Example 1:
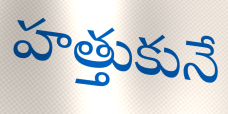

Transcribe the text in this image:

హత్తుకునే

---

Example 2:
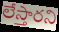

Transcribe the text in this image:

లేస్తారని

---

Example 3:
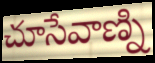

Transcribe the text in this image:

చూసేవాణ్ని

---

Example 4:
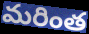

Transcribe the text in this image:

మరింత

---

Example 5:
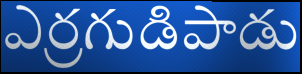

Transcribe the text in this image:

ఎర్రగుడిపాడు